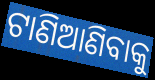
ଟାଣିଆଣିବାକୁ